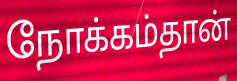
நோக்கம்தான்